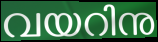
വയറിനു